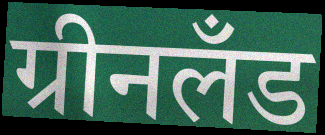
ग्रीनलँड